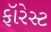
ફૉરેસ્ટ